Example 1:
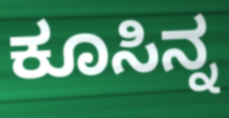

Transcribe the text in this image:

ಕೂಸಿನ್ನ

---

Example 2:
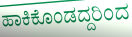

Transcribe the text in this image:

ಹಾಕಿಕೊಂಡದ್ದರಿಂದ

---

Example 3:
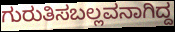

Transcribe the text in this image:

ಗುರುತಿಸಬಲ್ಲವನಾಗಿದ್ದ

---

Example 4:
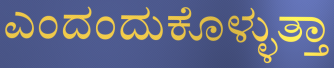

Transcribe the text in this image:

ಎಂದಂದುಕೊಳ್ಳುತ್ತಾ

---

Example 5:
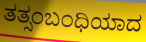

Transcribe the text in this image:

ತತ್ಸಂಬಂಧಿಯಾದ